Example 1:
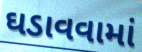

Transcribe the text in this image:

ઘડાવવામાં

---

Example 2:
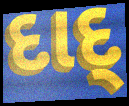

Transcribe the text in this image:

દાદ્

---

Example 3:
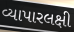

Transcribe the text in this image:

વ્યાપારલક્ષી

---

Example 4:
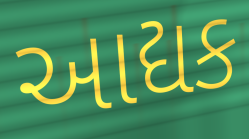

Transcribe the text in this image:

આદ્યક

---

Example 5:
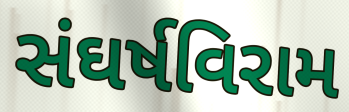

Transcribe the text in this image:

સંઘર્ષવિરામ